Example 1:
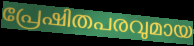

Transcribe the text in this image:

പ്രേഷിതപരവുമായ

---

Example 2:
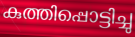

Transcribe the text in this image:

കുത്തിപ്പൊട്ടിച്ചു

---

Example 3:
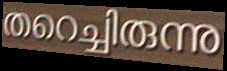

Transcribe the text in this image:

തറെച്ചിരുന്നു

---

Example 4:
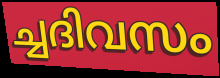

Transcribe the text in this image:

ച്ചദിവസം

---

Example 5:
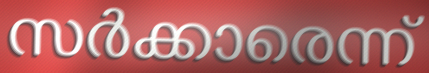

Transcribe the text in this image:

സർക്കാരെന്ന്